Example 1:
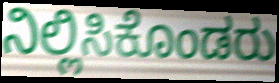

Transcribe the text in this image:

ನಿಲ್ಲಿಸಿಕೊಂಡರು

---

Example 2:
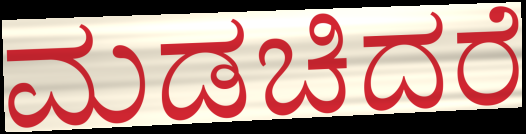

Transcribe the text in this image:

ಮಡಚಿದರೆ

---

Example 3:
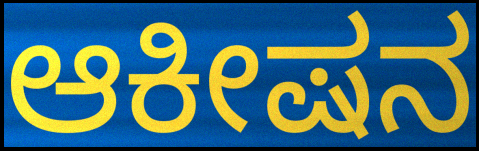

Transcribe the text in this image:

ಆಕೀಷನ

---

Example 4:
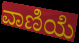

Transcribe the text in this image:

ವಾಣಿಯೆ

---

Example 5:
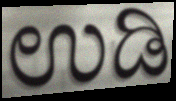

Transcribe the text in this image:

ಉಡಿ